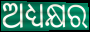
ଅଧ୍ୟକ୍ଷର